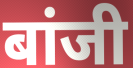
बांजी